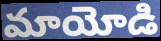
మాయోడి